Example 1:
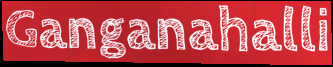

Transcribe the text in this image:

Ganganahalli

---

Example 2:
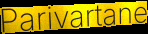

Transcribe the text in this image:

Parivartane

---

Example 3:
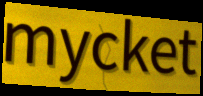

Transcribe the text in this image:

mycket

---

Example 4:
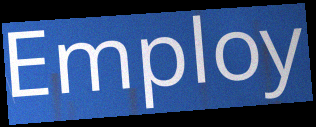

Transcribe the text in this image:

Employ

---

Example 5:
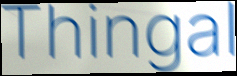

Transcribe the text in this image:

Thingal